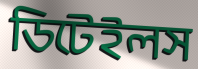
ডিটেইলস